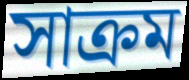
সাক্রম